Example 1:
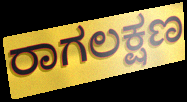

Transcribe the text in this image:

ರಾಗಲಕ್ಷಣ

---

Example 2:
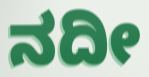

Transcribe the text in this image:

ನದೀ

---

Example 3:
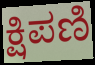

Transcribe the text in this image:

ಕ್ಷಿಪಣಿ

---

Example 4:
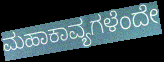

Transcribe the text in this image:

ಮಹಾಕಾವ್ಯಗಳೆಂದೇ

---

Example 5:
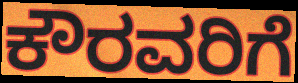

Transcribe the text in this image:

ಕೌರವರಿಗೆ